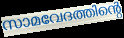
സാമവേദത്തിന്റെ